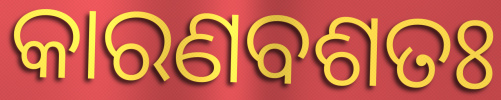
କାରଣବଶତଃ